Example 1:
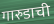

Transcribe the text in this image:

गारुडाची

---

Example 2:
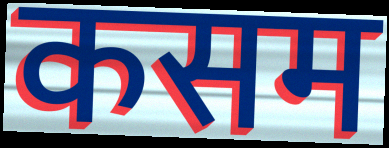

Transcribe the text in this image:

कसम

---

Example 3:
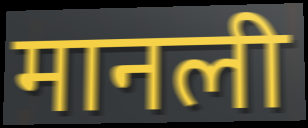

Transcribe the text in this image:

मानली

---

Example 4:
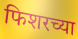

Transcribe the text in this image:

फिशरच्या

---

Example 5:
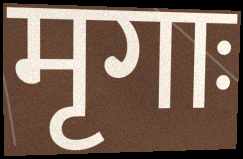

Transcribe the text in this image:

मृगाः